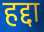
हद्दा